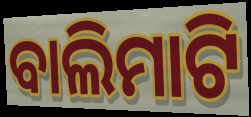
ବାଲିମାଟି